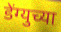
डेंग्युच्या